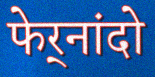
फेर्नांदो